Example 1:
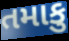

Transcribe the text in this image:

તમાકુ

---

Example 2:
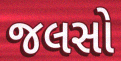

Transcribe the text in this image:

જલસો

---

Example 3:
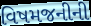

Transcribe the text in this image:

વિષમજનીની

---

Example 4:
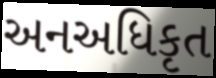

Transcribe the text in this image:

અનઅધિકૃત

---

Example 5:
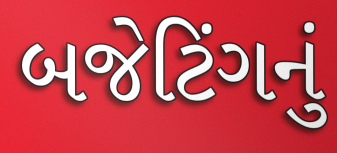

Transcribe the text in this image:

બજેટિંગનું